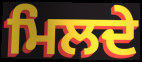
ਮਿਲਦੇ